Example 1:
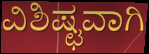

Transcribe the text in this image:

ವಿಶಿಷ್ಟವಾಗಿ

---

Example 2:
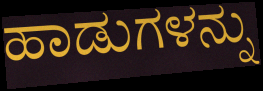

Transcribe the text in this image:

ಹಾಡುಗಳನ್ನು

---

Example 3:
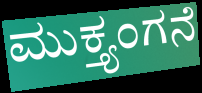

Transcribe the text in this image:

ಮುಕ್ತ್ಯಂಗನೆ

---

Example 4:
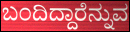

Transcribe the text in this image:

ಬಂದಿದ್ದಾರೆನ್ನುವ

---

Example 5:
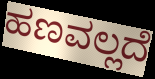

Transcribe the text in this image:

ಹಣವಲ್ಲದೆ